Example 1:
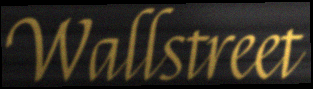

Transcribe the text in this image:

Wallstreet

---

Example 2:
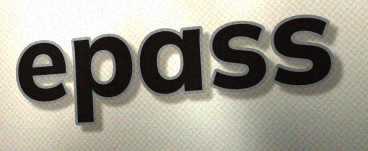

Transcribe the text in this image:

epass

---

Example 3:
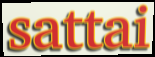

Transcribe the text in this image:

sattai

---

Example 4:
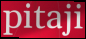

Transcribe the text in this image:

pitaji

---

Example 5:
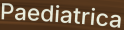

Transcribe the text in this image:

Paediatrica